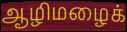
ஆழிமழைக்